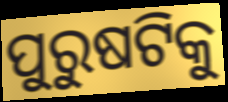
ପୁରୁଷଟିକୁ